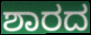
ಶಾರದ